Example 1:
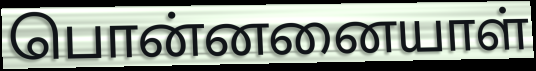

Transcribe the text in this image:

பொன்னனையாள்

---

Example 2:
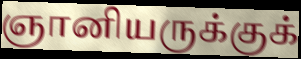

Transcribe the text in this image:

ஞானியருக்குக்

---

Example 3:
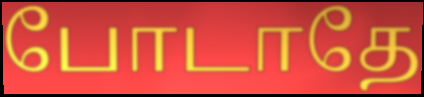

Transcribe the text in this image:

போடாதே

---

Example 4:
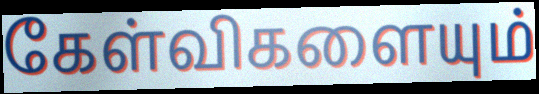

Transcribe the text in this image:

கேள்விகளையும்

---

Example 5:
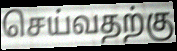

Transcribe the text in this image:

செய்வதற்கு